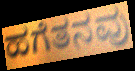
ಹಗೆತನವು